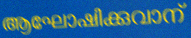
ആഘോഷിക്കുവാന്